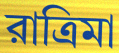
রাত্রিমা